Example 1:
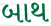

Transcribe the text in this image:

બાથ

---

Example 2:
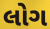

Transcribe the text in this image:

લોગ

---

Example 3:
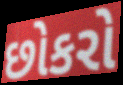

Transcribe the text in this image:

છોકરો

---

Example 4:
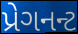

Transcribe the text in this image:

પ્રેગનન્ટ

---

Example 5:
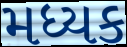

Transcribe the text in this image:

મધ્યક